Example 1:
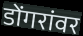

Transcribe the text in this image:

डोंगरांवर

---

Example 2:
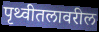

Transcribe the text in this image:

पृथ्वीतलावरील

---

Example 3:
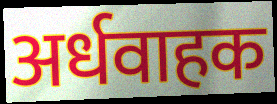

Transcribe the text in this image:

अर्धवाहक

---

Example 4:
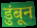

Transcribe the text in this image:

डुंबून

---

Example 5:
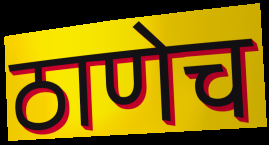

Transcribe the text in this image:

ठाणेच